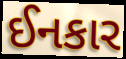
ઈનકાર